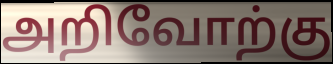
அறிவோற்கு